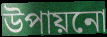
উপায়নো